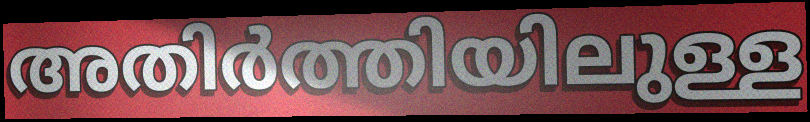
അതിർത്തിയിലുള്ള